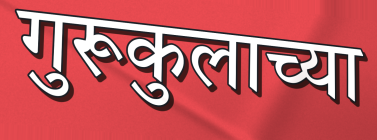
गुरूकुलाच्या